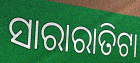
ସାରାରାତିଟା